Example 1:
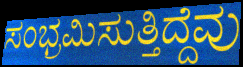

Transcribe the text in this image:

ಸಂಭ್ರಮಿಸುತ್ತಿದ್ದೆವು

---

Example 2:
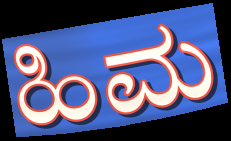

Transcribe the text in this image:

ಹಿಮ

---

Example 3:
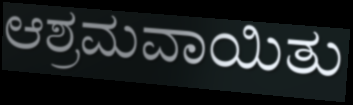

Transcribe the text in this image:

ಆಶ್ರಮವಾಯಿತು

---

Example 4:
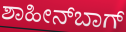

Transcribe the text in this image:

ಶಾಹೀನ್‌ಬಾಗ್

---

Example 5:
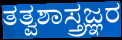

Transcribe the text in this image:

ತತ್ವಶಾಸ್ತ್ರಜ್ಞರ